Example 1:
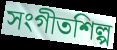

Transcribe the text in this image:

সংগীতশিল্প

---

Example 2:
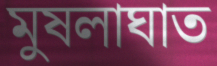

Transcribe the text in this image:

মুষলাঘাত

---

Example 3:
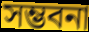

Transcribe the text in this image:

সম্ভবনা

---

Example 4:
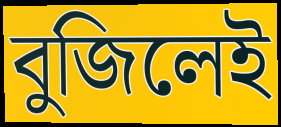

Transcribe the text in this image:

বুজিলেই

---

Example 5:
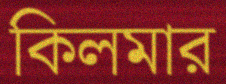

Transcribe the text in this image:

কিলমার